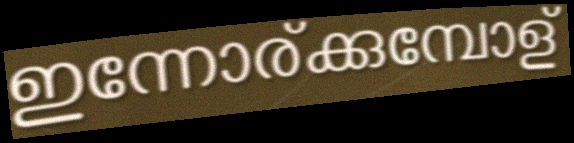
ഇന്നോര്ക്കുമ്പോള്